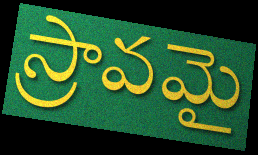
స్రావమై